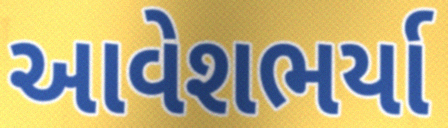
આવેશભર્યા